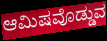
ಆಮಿಷವೊಡ್ಡುವ